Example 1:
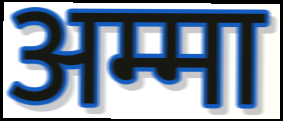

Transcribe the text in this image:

अम्मा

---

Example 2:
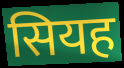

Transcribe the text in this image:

सियह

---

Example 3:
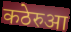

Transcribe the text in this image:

कठेरुआ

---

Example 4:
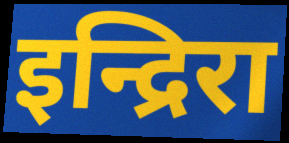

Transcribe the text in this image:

इन्द्रिरा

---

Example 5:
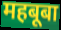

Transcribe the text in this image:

महबूबा